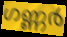
ഗണ്ണർ